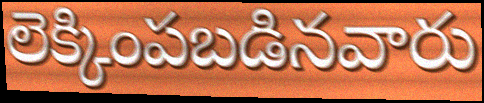
లెక్కింపబడినవారు